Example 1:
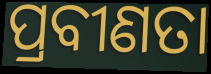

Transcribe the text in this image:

ପ୍ରବୀଣତା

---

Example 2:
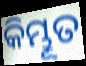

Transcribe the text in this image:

କିମ୍ଭୂତ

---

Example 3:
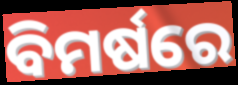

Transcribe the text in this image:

ବିମର୍ଷରେ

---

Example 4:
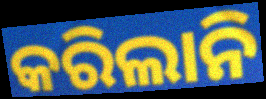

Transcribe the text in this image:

କରିଲାନି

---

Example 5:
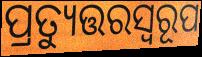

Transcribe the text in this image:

ପ୍ରତ୍ୟୁତ୍ତରସ୍ଵରୂପ